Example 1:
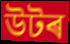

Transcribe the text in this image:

উটৰ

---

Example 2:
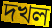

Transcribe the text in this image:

দখল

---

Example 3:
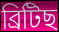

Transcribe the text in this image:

ব্ৰিটিছ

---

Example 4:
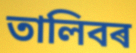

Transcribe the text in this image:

তালিবৰ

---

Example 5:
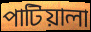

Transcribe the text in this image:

পাটিয়ালা